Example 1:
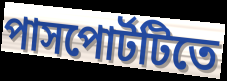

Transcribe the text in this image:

পাসপোর্টটিতে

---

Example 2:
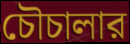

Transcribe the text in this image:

চৌচালার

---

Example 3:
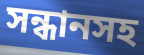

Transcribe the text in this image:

সন্ধানসহ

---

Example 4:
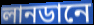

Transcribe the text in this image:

লানডানে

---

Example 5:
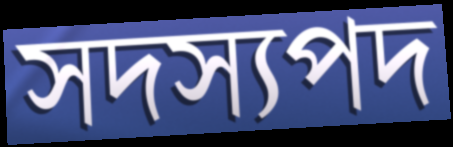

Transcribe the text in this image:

সদস্যপদ